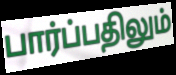
பார்ப்பதிலும்